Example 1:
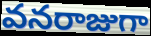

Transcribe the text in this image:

వనరాజుగా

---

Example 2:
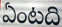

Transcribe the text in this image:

ఏంటది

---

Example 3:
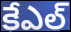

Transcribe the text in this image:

కేఎల్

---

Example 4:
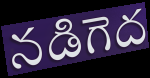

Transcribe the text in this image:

నడిగెద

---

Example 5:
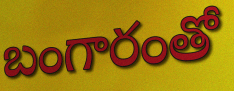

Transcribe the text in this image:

బంగారంతో